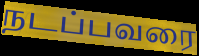
நடப்பவரை